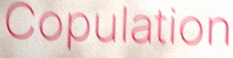
Copulation